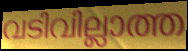
വടിവില്ലാത്ത